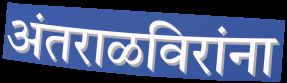
अंतराळविरांना